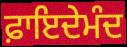
ਫ਼ਾਇਦੇਮੰਦ